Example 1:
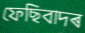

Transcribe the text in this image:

ফেছিবাদৰ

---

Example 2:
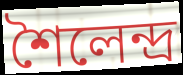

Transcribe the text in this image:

শৈলেন্দ্ৰ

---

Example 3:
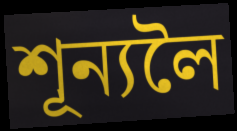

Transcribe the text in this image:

শূন্যলৈ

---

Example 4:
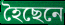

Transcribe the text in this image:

হৈছেনে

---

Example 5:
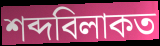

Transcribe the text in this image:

শব্দবিলাকত